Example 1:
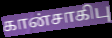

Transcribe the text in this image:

கான்சாகிபு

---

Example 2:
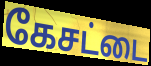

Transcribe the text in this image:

கேசட்டை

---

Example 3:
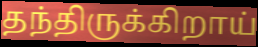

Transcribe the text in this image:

தந்திருக்கிறாய்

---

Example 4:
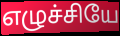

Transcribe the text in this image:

எழுச்சியே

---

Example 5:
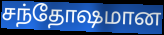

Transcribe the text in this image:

சந்தோஷமான